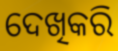
ଦେଖିକରି